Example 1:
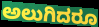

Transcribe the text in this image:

ಅಲುಗಿದರೂ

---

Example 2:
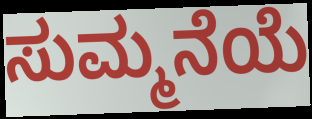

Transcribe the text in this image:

ಸುಮ್ಮನೆಯೆ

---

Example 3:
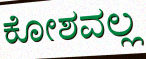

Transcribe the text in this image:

ಕೋಶವಲ್ಲ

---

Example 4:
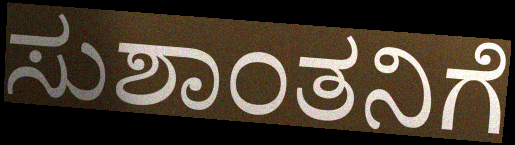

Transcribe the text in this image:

ಸುಶಾಂತನಿಗೆ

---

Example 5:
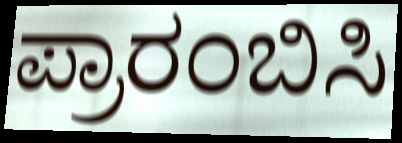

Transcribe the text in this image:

ಪ್ರಾರಂಬಿಸಿ